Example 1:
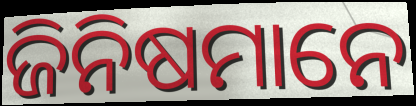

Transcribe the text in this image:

ଜିନିଷମାନେ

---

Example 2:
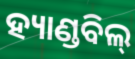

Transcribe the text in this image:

ହ୍ୟାଣ୍ଡବିଲ୍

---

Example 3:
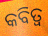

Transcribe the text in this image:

କବିତ୍ବ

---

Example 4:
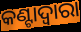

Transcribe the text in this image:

କଣ୍ଟାଦ୍ୱାରା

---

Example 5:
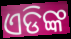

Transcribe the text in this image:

ଏଡିଙ୍କ